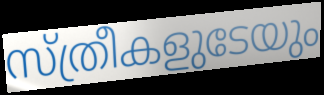
സ്ത്രീകളുടേയും